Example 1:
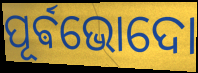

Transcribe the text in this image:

ପୂର୍ଵଭୋଦୋ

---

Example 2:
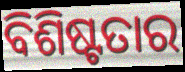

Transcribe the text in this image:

ବିଶିଷ୍ଟତାର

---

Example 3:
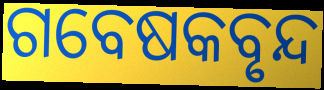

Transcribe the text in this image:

ଗବେଷକବୃନ୍ଦ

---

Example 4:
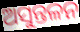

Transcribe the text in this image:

ଅସୁନ୍ତଳନ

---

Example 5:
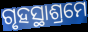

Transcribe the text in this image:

ଗୃହସ୍ଥାଶ୍ରମେ